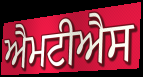
ਐਮਟੀਐਸ